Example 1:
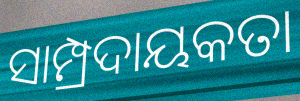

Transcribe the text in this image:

ସାମ୍ପ୍ରଦାୟକତା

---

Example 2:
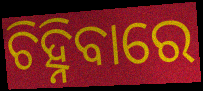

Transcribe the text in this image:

ଚିହ୍ନିବାରେ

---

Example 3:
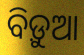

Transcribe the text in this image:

ବିଡ଼ୁଆ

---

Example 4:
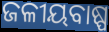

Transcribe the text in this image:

ଜଳୀୟବାଷ୍ପ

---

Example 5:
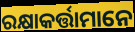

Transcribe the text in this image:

ରକ୍ଷାକର୍ତ୍ତାମାନେ